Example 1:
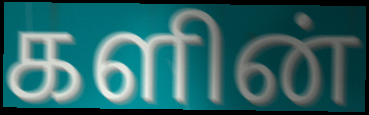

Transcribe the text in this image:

களின்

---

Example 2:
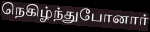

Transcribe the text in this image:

நெகிழ்ந்துபோனார்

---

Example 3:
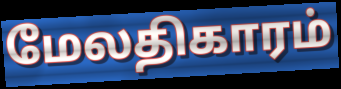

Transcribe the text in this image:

மேலதிகாரம்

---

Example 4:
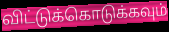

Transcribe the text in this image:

விட்டுக்கொடுக்கவும்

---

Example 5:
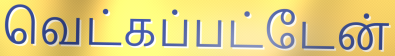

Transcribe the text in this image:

வெட்கப்பட்டேன்